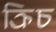
ক্রিচ